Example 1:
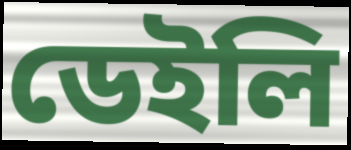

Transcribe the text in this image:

ডেইলি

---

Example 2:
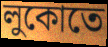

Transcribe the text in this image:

লুকোতে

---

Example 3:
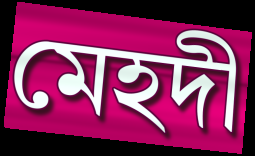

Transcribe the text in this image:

মেহদী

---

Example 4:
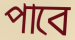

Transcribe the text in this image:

পাবে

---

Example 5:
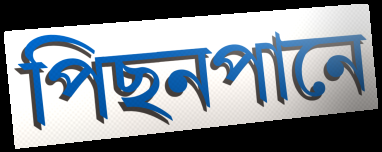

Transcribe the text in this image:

পিছনপানে